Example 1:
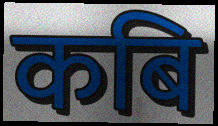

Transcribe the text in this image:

कबि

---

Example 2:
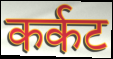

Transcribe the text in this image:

कर्कट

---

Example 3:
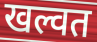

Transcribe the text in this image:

खल्वत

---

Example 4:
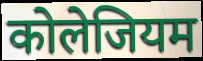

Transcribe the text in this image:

कोलेजियम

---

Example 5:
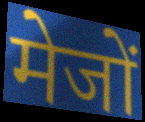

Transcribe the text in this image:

मेजों